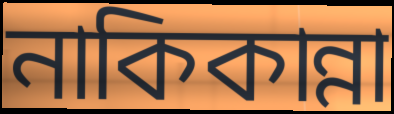
নাকিকান্না